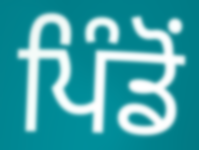
ਪਿੰਡੋਂ